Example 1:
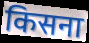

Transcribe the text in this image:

किसना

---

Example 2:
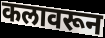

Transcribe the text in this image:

कलावरून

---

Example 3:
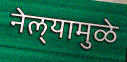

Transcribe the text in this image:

नेल्यामुळे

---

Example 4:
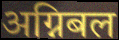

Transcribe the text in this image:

अग्निबल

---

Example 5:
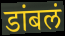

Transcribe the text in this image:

डांबलं